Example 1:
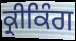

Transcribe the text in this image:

ਕ੍ਰੀਕਿੰਗ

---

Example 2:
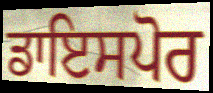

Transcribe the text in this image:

ਡਾਇਸਪੋਰ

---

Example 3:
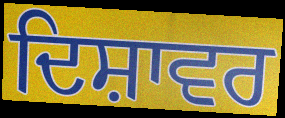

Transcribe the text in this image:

ਦਿਸ਼ਾਵਰ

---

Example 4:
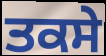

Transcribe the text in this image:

ਤਕਸੇ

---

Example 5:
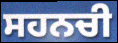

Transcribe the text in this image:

ਸਹਨਚੀ